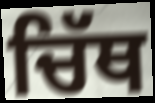
ਚਿੱਥ